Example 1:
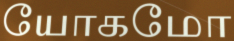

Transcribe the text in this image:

யோகமோ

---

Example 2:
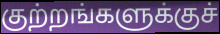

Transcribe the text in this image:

குற்றங்களுக்குச்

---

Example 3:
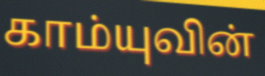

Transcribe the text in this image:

காம்யுவின்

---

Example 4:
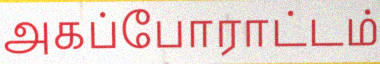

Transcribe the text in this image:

அகப்போராட்டம்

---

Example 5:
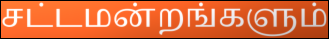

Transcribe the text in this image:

சட்டமன்றங்களும்